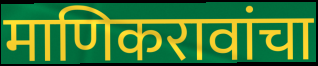
माणिकरावांचा